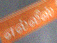
எல்லீஸ்